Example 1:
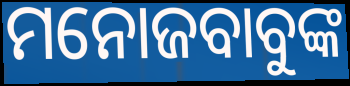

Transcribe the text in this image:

ମନୋଜବାବୁଙ୍କ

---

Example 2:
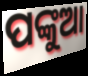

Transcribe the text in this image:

ପଙ୍କୁଆ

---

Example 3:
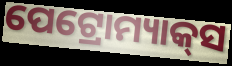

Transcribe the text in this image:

ପେଟ୍ରୋମ୍ୟାକ୍‌ସ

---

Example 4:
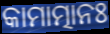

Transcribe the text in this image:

କାମାତ୍ମାନଃ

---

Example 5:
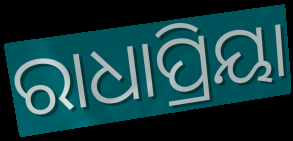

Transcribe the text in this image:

ରାଧାପ୍ରିୟା